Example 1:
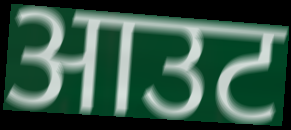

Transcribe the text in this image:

आउट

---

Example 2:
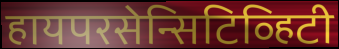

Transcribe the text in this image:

हायपरसेन्सिटिव्हिटी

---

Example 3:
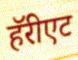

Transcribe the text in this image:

हॅरीएट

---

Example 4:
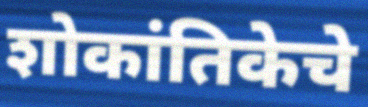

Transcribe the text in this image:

शोकांतिकेचे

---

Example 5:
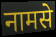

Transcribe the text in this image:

नामसे